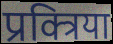
प्रक्त्रिया